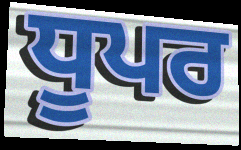
ਧੂਪਰ